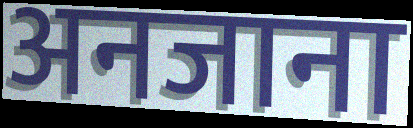
अनजाना